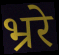
भ्ररे